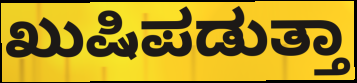
ಖುಷಿಪಡುತ್ತಾ